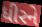
ધીરને